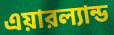
এয়ারল্যান্ড